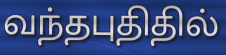
வந்தபுதிதில்